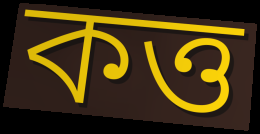
কত্ত